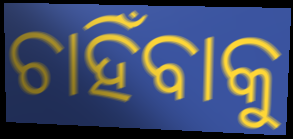
ଚାହିଁବାକୁ